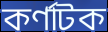
কর্ণাটক